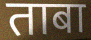
ताबा